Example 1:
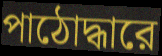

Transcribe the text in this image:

পাঠোদ্ধারে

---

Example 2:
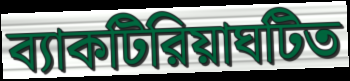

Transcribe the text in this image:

ব্যাকটিরিয়াঘটিত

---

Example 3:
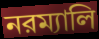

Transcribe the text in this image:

নরম্যালি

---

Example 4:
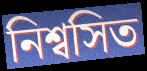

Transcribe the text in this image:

নিশ্বসিত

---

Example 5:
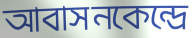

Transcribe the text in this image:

আবাসনকেন্দ্রে